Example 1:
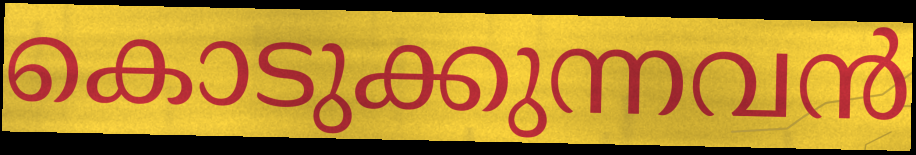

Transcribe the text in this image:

കൊടുക്കുന്നവൻ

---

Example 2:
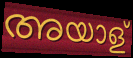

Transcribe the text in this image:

അയാള്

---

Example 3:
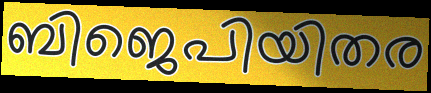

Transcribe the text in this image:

ബിജെപിയിതര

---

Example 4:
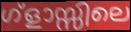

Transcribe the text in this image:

ഗ്ളാസ്സിലെ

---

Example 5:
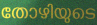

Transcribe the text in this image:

തോഴിയുടെ